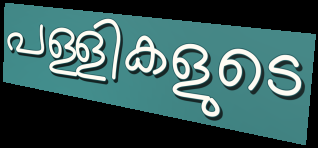
പള്ളികളുടെ